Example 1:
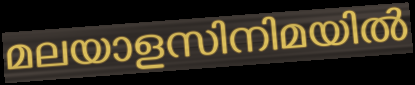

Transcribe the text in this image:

മലയാളസിനിമയിൽ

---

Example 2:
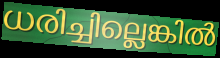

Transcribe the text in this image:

ധരിച്ചില്ലെങ്കിൽ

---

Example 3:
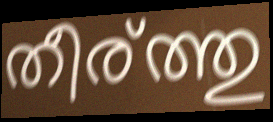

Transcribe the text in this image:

തീര്ത്തു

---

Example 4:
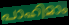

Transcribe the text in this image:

പാഹിമാം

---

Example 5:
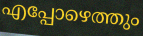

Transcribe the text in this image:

എപ്പോഴെത്തും